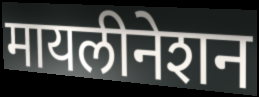
मायलीनेशन